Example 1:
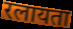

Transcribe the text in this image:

रलायता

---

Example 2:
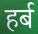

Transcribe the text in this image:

हर्ब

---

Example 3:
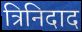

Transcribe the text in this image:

त्रिनिदाद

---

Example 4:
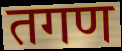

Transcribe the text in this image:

तगण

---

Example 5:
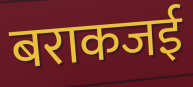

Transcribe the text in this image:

बराकजई